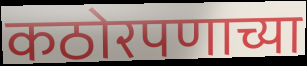
कठोरपणाच्या